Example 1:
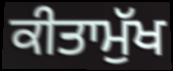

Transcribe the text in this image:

ਕੀਤਾਮੁੱਖ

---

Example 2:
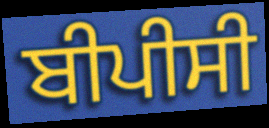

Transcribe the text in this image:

ਬੀਪੀਸੀ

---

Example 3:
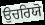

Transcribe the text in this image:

ਉਚਰਿਯੋ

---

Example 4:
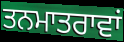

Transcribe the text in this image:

ਤਨਮਾਤਰਾਵਾਂ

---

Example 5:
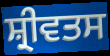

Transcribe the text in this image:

ਸ਼੍ਰੀਵਤਸ